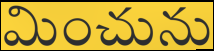
మించును